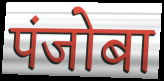
पंजोबा